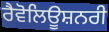
ਰੈਵੋਲਿਊਸ਼ਨਰੀ